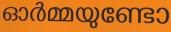
ഓർമ്മയുണ്ടോ